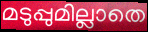
മടുപ്പുമില്ലാതെ